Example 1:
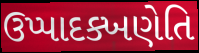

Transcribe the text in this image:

ઉપ્પાદક્ખણેતિ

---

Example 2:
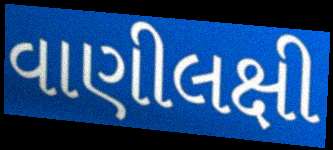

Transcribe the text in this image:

વાણીલક્ષી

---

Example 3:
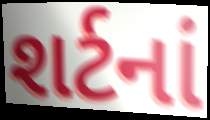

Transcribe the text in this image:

શર્ટનાં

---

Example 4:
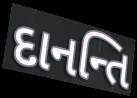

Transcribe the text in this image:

દાનન્તિ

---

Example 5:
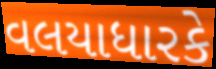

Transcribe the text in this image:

વલયાધારકે